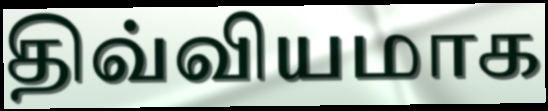
திவ்வியமாக